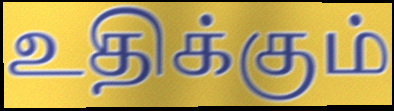
உதிக்கும்